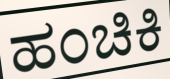
ಹಂಚಿಕಿ